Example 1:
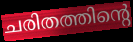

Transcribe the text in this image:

ചരിതത്തിന്റെ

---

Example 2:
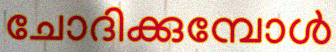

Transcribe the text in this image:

ചോദിക്കുമ്പോൾ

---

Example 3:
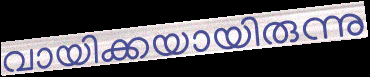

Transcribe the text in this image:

വായിക്കയായിരുന്നു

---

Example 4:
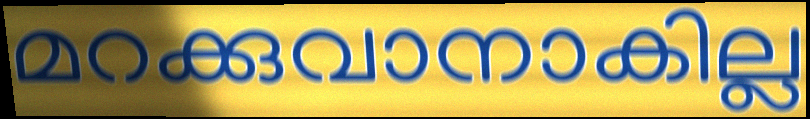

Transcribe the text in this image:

മറക്കുവാനാകില്ല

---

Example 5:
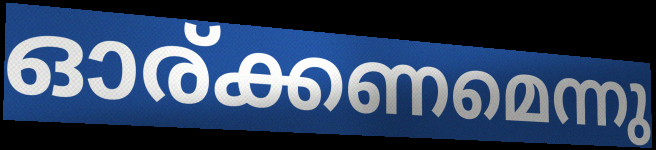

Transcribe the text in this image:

ഓര്ക്കണമെന്നു